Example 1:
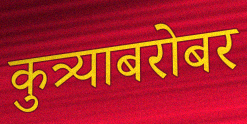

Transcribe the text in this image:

कुत्र्याबरोबर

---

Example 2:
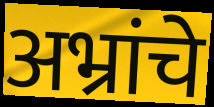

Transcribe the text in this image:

अभ्रांचे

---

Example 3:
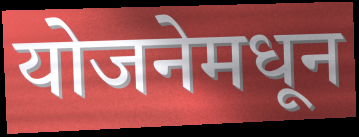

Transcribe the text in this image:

योजनेमधून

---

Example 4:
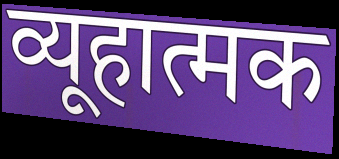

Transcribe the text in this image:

व्यूहात्मक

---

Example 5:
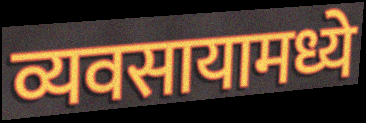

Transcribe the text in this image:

व्यवसायामध्ये